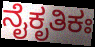
ನೈಕೃತಿಕಃ